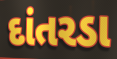
દાંતરડા